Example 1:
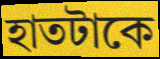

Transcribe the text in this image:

হাতটাকে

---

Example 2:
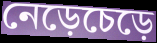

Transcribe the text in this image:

নেড়েচেড়ে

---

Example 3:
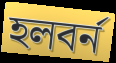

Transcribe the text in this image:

হলবর্ন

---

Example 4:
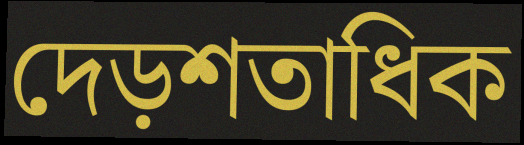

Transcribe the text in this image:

দেড়শতাধিক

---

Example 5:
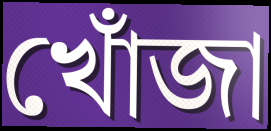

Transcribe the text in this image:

খোঁজা